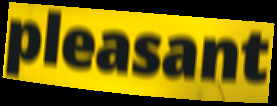
pleasant